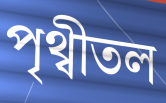
পৃথ্বীতল